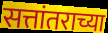
सत्तांतराच्या